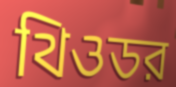
থিওডর